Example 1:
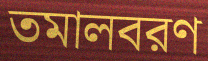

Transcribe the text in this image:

তমালবরণ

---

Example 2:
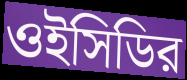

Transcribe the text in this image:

ওইসিডির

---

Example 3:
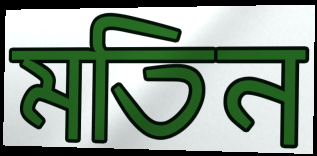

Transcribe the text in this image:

মতিন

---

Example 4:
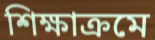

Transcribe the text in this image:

শিক্ষাক্রমে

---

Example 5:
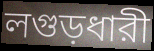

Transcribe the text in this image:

লগুড়ধারী